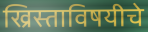
ख्रिस्ताविषयीचे